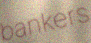
bankers